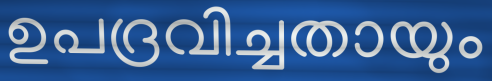
ഉപദ്രവിച്ചതായും